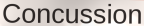
Concussion